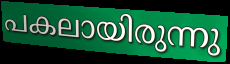
പകലായിരുന്നു